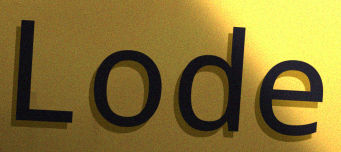
Lode